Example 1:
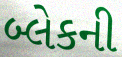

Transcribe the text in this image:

બ્લેકની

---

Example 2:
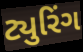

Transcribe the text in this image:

ટ્યુરિંગ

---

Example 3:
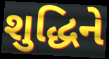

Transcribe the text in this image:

શુદ્ધિને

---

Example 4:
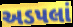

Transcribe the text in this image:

અડપલાં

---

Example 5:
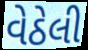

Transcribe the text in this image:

વેઠેલી